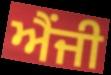
ਐਂਜੀ